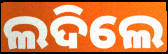
ଲଦିଲେ